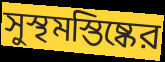
সুস্থমস্তিষ্কের